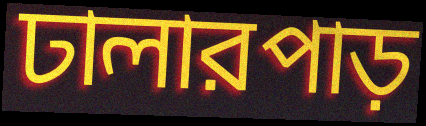
ঢালারপাড়